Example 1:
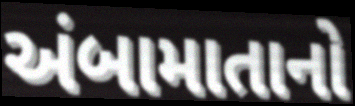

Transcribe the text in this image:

અંબામાતાનો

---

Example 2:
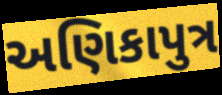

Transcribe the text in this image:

અણિકાપુત્ર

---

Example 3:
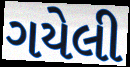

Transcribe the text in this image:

ગયેલી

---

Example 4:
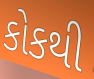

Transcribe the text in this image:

કોકથી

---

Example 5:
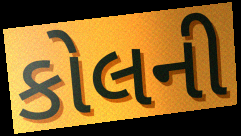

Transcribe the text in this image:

કોલની